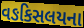
વઙકિસલયના